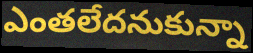
ఎంతలేదనుకున్నా